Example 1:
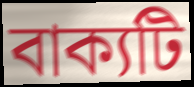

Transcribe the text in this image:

বাক্যটি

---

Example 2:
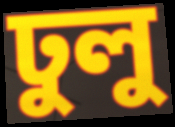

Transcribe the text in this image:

ঢুলু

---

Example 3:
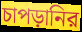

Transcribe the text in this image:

চাপড়ানির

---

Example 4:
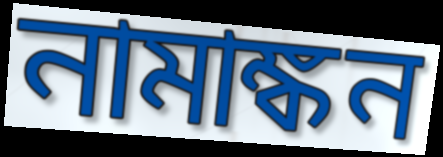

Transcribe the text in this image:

নামাঙ্কন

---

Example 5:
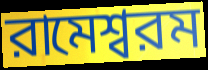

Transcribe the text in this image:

রামেশ্বরম